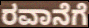
ರವಾನೆಗೆ